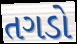
તગડો